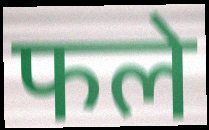
फले